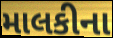
માલકીના